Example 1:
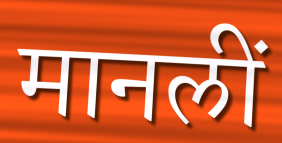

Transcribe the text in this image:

मानलीं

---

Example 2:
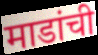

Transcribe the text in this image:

माडांची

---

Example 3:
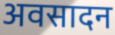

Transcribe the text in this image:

अवसादन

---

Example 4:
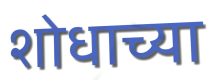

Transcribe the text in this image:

शोधाच्या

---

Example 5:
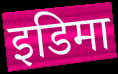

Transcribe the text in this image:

इडिमा